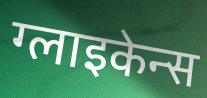
ग्लाइकेन्स